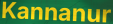
Kannanur